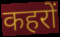
कहरों